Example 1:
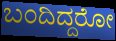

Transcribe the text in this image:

ಬಂದಿದ್ದರೋ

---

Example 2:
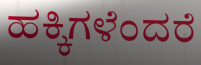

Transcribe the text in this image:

ಹಕ್ಕಿಗಳೆಂದರೆ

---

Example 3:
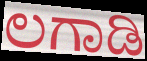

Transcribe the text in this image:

ಲಗಾಡಿ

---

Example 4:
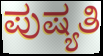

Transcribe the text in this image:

ಪುಷ್ಯತಿ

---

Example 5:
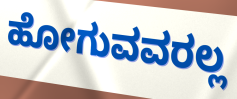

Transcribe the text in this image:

ಹೋಗುವವರಲ್ಲ